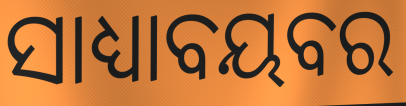
ସାଧ୍ୟାବୟବର